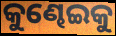
କୁଣ୍ଢେଇକୁ